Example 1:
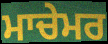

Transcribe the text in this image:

ਮਾਚੇਮਰ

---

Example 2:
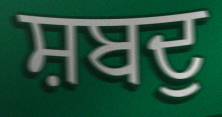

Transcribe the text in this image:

ਸ਼ਬਦੁ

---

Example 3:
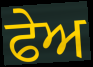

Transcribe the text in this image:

ਫੇਅ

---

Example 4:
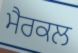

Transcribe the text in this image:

ਮੈਰਕਲ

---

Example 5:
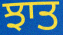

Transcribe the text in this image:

ਝਾਤ